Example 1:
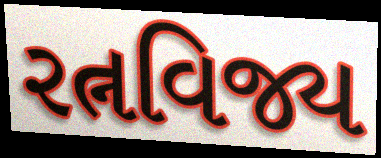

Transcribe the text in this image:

રત્નવિજ્ય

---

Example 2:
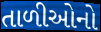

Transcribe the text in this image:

તાળીઓનો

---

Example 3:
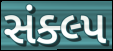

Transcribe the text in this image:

સંક્લ્પ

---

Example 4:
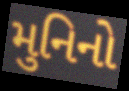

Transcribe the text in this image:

મુનિનો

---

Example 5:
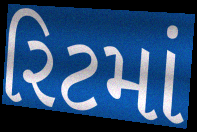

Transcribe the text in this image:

રિટમાં